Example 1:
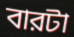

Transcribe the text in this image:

বারটা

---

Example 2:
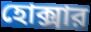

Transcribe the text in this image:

হোক্সার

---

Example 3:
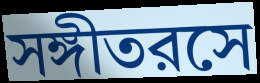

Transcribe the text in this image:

সঙ্গীতরসে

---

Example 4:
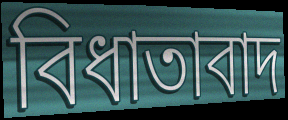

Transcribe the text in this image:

বিধাতাবাদ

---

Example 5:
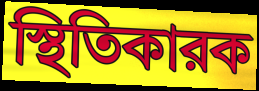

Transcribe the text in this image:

স্থিতিকারক